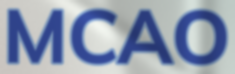
MCAO